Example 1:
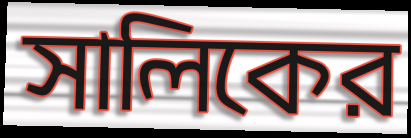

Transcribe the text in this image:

সালিকের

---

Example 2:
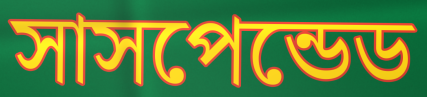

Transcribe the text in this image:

সাসপেন্ডেড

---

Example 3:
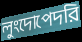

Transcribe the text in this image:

লুংদোপেদরি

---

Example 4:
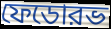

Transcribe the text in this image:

ফেডোরভ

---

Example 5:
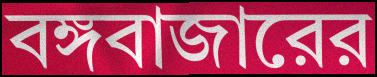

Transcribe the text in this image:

বঙ্গবাজারের